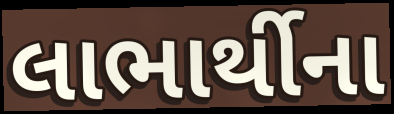
લાભાર્થીના